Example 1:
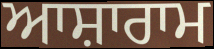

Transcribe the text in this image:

ਆਸ਼ਾਰਾਮ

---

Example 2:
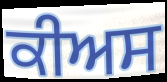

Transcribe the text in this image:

ਕੀਅਸ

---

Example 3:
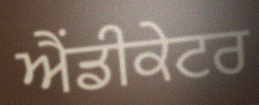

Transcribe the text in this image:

ਐਂਡੀਕੇਟਰ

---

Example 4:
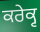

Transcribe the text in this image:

ਕਰੇਕ੍ਟ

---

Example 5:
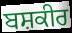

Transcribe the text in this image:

ਬਸ਼ਕੀਰ